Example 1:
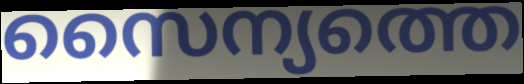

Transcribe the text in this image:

സൈന്യത്തെ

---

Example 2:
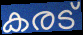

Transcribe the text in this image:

കരട്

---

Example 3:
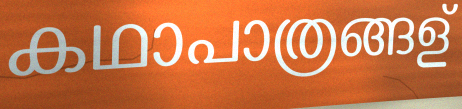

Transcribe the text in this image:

കഥാപാത്രങ്ങള്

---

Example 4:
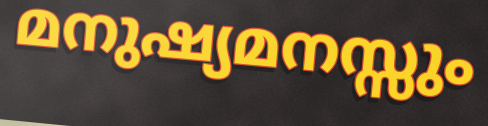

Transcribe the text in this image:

മനുഷ്യമനസ്സും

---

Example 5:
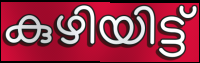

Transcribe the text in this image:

കുഴിയിട്ട്